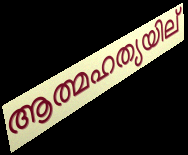
ആത്മഹത്യയില്